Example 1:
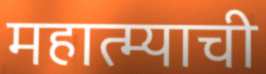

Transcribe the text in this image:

महात्म्याची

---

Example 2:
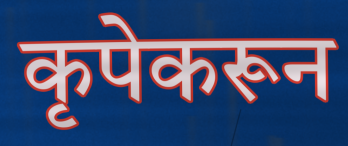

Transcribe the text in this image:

कृपेकरून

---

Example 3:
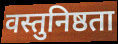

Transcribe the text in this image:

वस्तुनिष्ठता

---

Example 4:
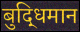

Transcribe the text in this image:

बुद्धिमान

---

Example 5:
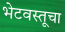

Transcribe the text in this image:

भेटवस्तूचा